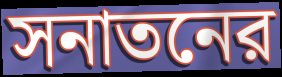
সনাতনের